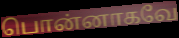
பொன்னாகவே